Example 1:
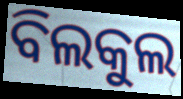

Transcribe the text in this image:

ବିଲକୁଲ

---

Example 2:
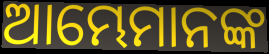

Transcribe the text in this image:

ଆମ୍ଭେମାନଙ୍କ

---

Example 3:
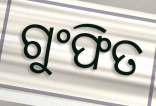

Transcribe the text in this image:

ଗୁଂଫିତ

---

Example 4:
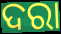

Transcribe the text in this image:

ଦରା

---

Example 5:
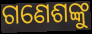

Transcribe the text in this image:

ଗଣେଶଙ୍କୁ